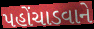
પહોંચાડવાને